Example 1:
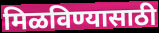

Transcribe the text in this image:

मिळविण्यासाठी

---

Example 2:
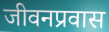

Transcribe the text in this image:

जीवनप्रवास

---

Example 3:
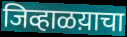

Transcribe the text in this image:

जिव्हाळय़ाचा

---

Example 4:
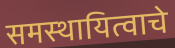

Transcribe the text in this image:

समस्थायित्वाचे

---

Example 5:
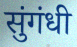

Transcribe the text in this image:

सुंगंधी